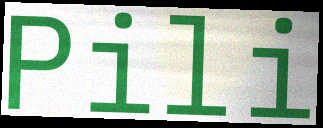
Pili